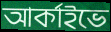
আর্কাইভে